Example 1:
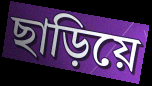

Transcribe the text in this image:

ছাড়িয়ে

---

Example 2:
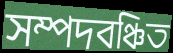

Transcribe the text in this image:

সম্পদবঞ্চিত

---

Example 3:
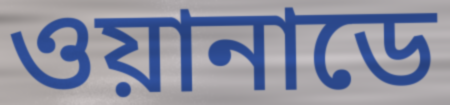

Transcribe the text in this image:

ওয়ানাডে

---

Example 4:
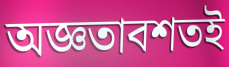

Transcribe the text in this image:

অজ্ঞতাবশতই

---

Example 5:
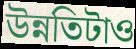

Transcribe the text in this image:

উন্নতিটাও